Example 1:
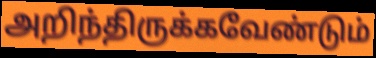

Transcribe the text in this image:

அறிந்திருக்கவேண்டும்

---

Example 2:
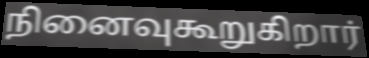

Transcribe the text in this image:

நினைவுகூறுகிறார்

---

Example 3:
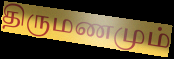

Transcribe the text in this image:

திருமணமும்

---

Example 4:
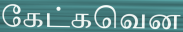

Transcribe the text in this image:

கேட்கவென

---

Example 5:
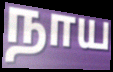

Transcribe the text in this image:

நாய